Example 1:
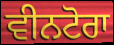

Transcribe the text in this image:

ਵੀਨਟੋਰਾ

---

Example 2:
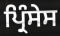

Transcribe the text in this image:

ਪ੍ਰਿੰਸੇਸ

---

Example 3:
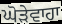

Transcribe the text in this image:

ਘੋੜੇਵਾਹਾ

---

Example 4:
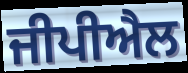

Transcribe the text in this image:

ਜੀਪੀਐਲ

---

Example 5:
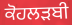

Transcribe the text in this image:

ਕੋਹਲੜਬੀ